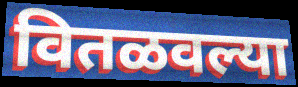
वितळवल्या